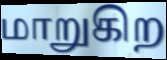
மாறுகிற